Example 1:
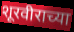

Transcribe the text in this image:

शूरवीराच्या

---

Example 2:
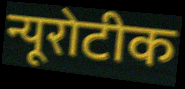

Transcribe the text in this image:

न्यूरोटीक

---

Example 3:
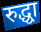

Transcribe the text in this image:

रुद्ध्वा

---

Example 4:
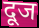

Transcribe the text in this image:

दूज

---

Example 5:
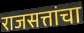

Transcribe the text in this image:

राजसत्तांचा